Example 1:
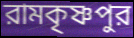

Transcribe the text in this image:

রামকৃষ্ণপুর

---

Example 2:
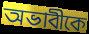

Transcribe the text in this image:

অভাবীকে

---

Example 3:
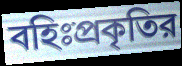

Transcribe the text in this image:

বহিঃপ্রকৃতির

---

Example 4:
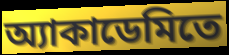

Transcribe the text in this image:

অ্যাকাডেমিতে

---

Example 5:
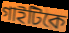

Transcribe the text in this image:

গাইটিকে